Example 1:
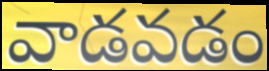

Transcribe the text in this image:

వాడవడం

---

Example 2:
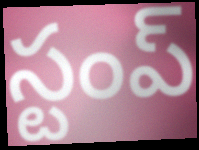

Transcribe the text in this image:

స్టంప్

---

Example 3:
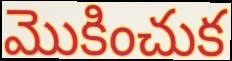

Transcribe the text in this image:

మొకించుక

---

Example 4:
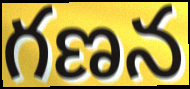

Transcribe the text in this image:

గణన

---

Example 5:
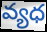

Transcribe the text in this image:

వ్యధ